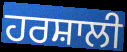
ਹਰਸ਼ਾਲੀ